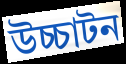
উচ্চাটন